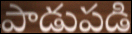
పాడుపడి